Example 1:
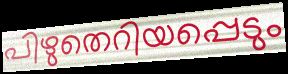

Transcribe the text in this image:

പിഴുതെറിയപ്പെടും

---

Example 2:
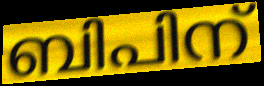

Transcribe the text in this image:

ബിപിന്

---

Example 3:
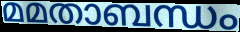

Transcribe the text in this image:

മമതാബന്ധം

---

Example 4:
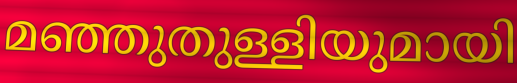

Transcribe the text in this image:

മഞ്ഞുതുള്ളിയുമായി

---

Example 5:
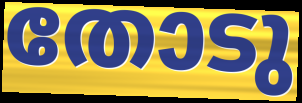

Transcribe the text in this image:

തോടു